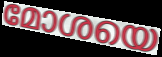
മോശയെ